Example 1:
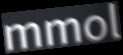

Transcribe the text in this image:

mmol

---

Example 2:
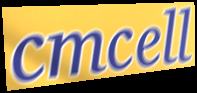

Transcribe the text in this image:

cmcell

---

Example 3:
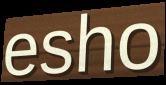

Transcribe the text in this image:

esho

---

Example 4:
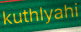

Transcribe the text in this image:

kuthlyahi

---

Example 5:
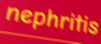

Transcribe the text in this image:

nephritis